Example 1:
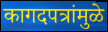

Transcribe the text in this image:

कागदपत्रांमुळे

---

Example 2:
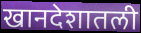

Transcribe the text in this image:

खानदेशातली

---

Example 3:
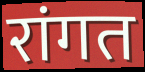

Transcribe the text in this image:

रांगत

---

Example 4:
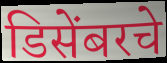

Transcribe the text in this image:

डिसेंबरचे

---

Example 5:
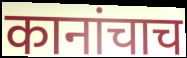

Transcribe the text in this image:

कानांचाच